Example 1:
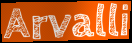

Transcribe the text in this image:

Arvalli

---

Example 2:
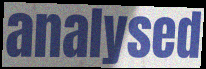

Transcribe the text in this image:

analysed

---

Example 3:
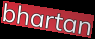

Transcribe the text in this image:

bhartan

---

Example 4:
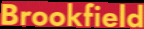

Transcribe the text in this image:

Brookfield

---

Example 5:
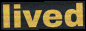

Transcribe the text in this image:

lived